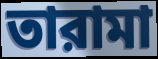
তারামা